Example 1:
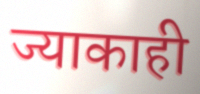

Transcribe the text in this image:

ज्याकाही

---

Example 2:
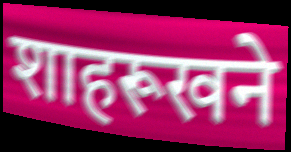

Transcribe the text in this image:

शाहरूखने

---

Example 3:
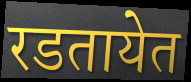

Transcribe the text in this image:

रडतायेत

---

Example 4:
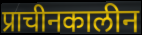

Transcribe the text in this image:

प्राचीनकालीन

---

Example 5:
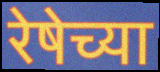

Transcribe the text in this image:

रेषेच्या